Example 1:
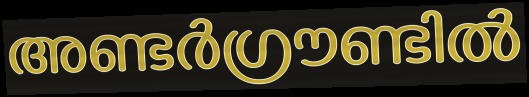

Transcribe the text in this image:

അണ്ടർഗ്രൗണ്ടിൽ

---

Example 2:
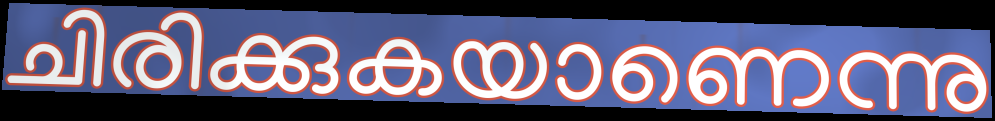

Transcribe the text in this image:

ചിരിക്കുകയാണെന്നു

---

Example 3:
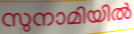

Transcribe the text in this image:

സുനാമിയിൽ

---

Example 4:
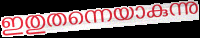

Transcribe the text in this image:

ഇതുതന്നെയാകുന്നു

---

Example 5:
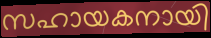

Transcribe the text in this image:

സഹായകനായി